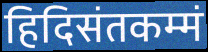
हिदिसंतकम्मं